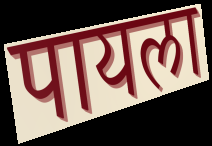
पायला